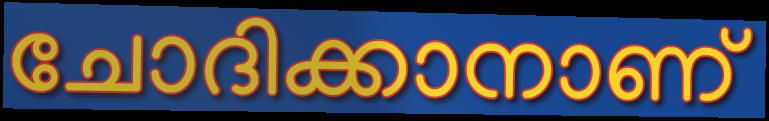
ചോദിക്കാനാണ്